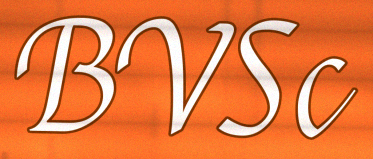
BVSc